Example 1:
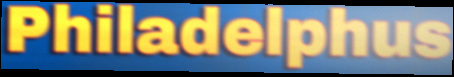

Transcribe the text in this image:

Philadelphus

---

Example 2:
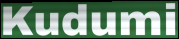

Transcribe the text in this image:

Kudumi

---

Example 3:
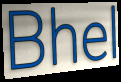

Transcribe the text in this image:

Bhel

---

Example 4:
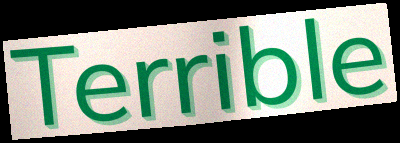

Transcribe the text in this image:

Terrible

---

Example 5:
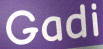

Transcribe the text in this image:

Gadi